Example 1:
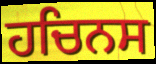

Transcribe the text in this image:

ਹਚਿਨਸ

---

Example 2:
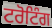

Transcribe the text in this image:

ਟਰੋਟਿੰਗ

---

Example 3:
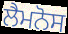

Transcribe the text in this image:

ਲੈਮਨੋਸ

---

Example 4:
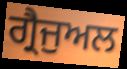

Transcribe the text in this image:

ਗ੍ਰੈਜੁਅਲ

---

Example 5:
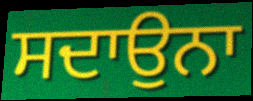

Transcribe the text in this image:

ਸਦਾਉਨਾ